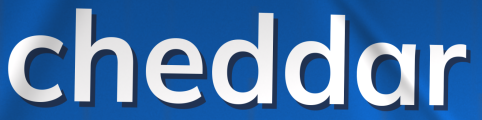
cheddar